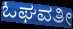
ಓಘವತೀ